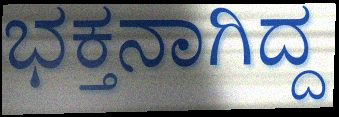
ಭಕ್ತನಾಗಿದ್ದ